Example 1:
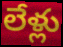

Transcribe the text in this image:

లేళ్లు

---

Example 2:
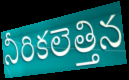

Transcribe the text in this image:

నీరికలెత్తిన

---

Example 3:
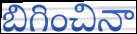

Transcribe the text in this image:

బిగించినా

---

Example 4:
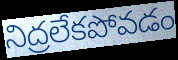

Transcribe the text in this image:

నిద్రలేకపోవడం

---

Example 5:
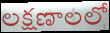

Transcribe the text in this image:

లక్షణాలలో